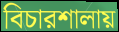
বিচারশালায়